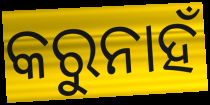
କରୁନାହଁ